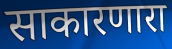
साकारणारा